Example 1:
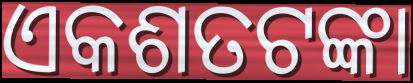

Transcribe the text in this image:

ଏକଶତଟଙ୍କା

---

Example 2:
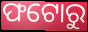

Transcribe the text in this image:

ଫଟୋରୁ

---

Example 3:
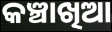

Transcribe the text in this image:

କଞ୍ଚାଖିଆ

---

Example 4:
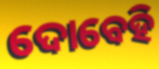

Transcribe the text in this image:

ଦୋବେହି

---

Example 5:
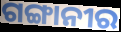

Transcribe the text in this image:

ଗଙ୍ଗାନୀର